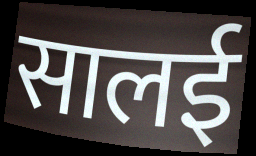
सालई